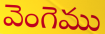
వెంగెము